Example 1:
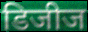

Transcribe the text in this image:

डिजीज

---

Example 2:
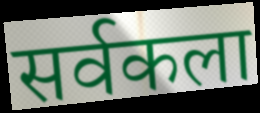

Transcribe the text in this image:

सर्वकला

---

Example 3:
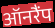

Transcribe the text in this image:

ऑनरैंप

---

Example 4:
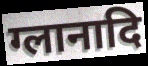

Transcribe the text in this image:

ग्लानादि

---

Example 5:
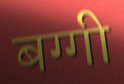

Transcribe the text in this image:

बग्गी